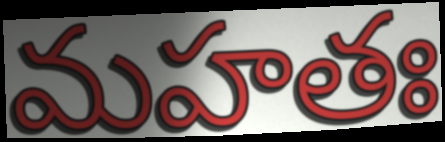
మహతః